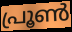
പ്രൂൺ